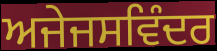
ਅਜੇਜਸਵਿੰਦਰ